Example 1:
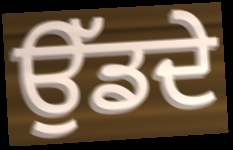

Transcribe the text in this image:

ਉੱਡਦੇ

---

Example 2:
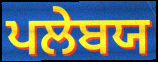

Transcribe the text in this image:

ਪਲੇਬਯ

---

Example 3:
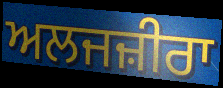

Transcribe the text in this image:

ਅਲਜਜ਼ੀਰਾ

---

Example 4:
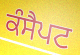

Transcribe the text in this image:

ਕੰਸੈਪਟ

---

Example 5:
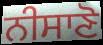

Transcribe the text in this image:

ਨੀਸਾਣੋ